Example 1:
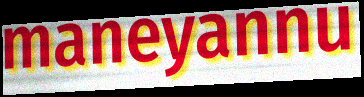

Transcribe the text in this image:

maneyannu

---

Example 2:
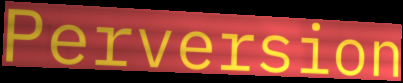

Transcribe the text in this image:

Perversion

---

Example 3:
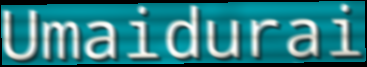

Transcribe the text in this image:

Umaidurai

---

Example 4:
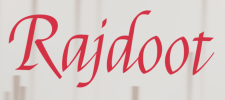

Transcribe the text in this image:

Rajdoot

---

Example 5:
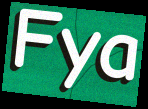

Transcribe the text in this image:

Fya